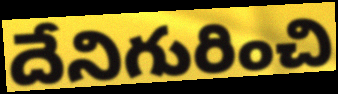
దేనిగురించి